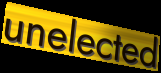
unelected